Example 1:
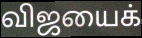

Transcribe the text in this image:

விஜயைக்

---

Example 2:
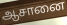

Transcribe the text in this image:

ஆசானை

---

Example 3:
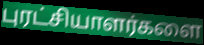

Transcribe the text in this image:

புரட்சியாளர்களை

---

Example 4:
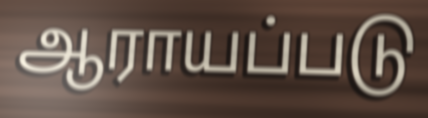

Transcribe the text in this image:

ஆராயப்படு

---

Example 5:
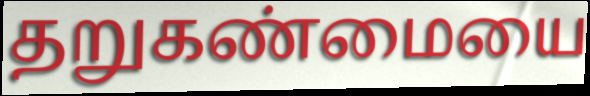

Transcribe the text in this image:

தறுகண்மையை